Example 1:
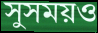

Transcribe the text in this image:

সুসময়ও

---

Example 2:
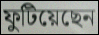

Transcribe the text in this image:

ফুটিয়েছেন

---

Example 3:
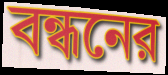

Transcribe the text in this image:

বন্ধনের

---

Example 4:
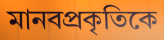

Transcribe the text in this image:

মানবপ্রকৃতিকে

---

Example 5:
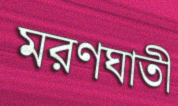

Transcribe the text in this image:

মরণঘাতী